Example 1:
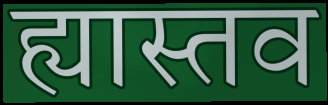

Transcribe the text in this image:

ह्यास्तव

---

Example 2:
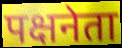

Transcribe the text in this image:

पक्षनेता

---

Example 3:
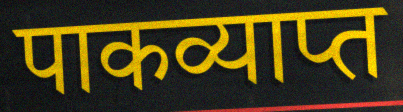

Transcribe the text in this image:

पाकव्याप्त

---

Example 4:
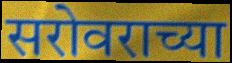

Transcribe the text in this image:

सरोवराच्या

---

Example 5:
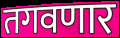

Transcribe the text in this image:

तगवणार